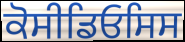
ਕੋਸੀਡਿਓਸਿਸ